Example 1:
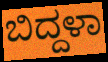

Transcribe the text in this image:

ಬಿದ್ದಳಾ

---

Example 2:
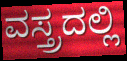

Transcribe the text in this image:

ವಸ್ತ್ರದಲ್ಲಿ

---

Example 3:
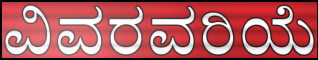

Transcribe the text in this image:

ವಿವರವರಿಯೆ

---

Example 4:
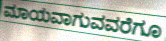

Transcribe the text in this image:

ಮಾಯವಾಗುವವರೆಗೂ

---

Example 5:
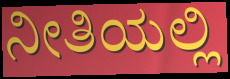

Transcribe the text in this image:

ನೀತಿಯಲ್ಲಿ